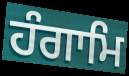
ਹੰਗਾਮਿ